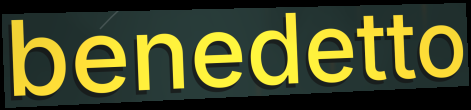
benedetto